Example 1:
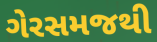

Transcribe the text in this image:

ગેરસમજથી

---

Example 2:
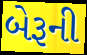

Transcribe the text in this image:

બેરૂની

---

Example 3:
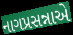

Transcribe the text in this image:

નાગપ્રસન્નાએ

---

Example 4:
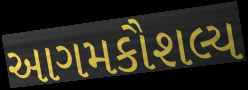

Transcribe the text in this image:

આગમકૌશલ્ય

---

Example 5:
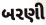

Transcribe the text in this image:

બરણી